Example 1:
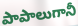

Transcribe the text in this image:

పాపాలుగానీ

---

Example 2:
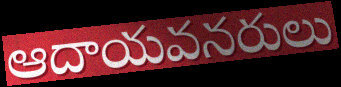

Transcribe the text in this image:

ఆదాయవనరులు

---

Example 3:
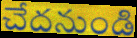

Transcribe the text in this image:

చేదనుండి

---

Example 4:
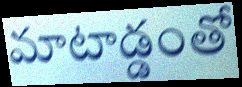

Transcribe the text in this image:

మాటాడ్డంతో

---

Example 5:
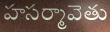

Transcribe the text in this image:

హసర్మావెతు